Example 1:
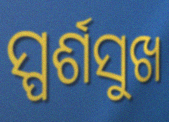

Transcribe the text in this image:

ସ୍ପର୍ଶସୁଖ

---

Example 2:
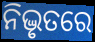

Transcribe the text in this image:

ନିଦ୍ଭୃତରେ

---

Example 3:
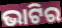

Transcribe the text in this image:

ଭାଟିର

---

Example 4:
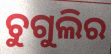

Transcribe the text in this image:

ଚୁଗୁଲିର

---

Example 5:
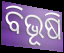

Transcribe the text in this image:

ବିଭୂଷି